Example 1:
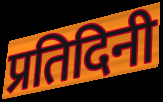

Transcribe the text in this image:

प्रतिदिनी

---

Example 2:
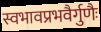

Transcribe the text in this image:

स्वभावप्रभवैर्गुणैः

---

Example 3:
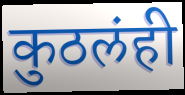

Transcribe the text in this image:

कुठलंही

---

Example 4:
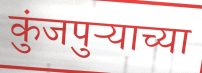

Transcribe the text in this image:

कुंजपुऱ्याच्या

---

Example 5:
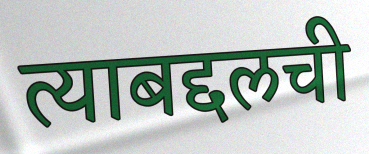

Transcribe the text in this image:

त्याबद्दलची